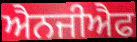
ਐਨਜੀਐਫ